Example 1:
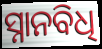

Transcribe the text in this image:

ସ୍ନାନବିଧି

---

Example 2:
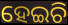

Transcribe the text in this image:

ହେଇଚି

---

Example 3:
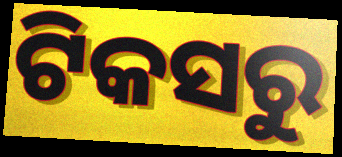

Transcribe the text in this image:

ଟିକସରୁ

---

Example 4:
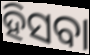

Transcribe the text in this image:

ହିସବା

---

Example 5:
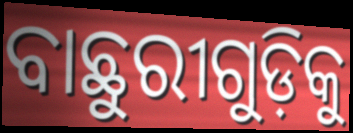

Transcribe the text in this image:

ବାଛୁରୀଗୁଡ଼ିକୁ